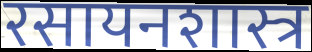
रसायनशास्त्र